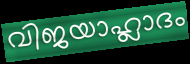
വിജയാഹ്ലാദം